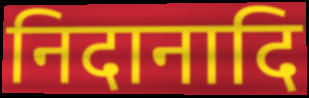
निदानादि